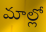
మాల్లో